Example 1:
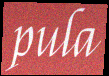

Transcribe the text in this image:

pula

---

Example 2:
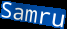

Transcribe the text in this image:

Samru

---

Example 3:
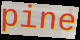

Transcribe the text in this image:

pine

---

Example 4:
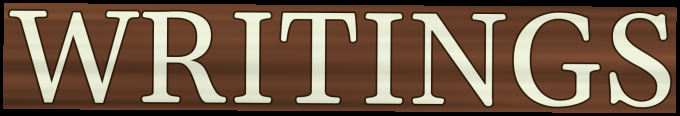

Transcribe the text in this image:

WRITINGS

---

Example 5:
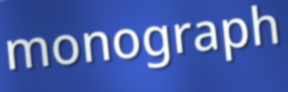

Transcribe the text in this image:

monograph